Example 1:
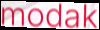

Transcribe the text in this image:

modak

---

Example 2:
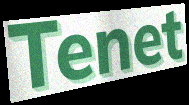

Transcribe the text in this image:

Tenet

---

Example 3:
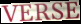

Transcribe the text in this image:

VERSE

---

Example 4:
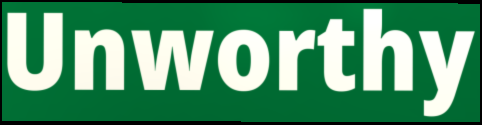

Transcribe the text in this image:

Unworthy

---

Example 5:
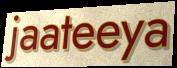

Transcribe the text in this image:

jaateeya